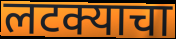
लटक्याचा